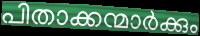
പിതാക്കന്മാർക്കും